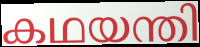
കഥയന്തി